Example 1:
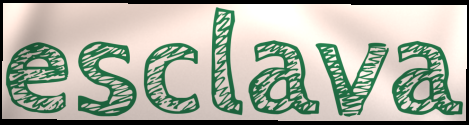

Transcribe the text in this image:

esclava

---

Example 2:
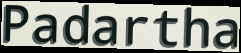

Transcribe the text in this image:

Padartha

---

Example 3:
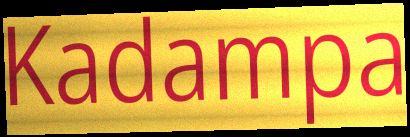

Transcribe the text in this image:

Kadampa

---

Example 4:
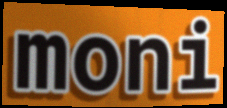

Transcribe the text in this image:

moni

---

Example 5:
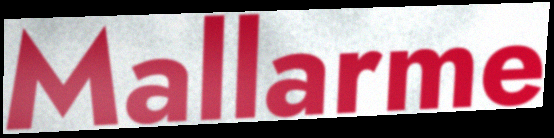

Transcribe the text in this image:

Mallarme